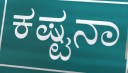
ಕಷ್ಟನಾ